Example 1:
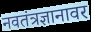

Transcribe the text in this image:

नवतंत्रज्ञानावर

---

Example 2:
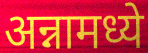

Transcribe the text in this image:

अन्नामध्ये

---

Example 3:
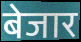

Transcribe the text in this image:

बेजार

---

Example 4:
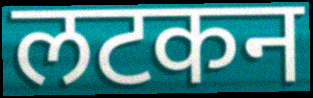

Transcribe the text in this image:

लटकन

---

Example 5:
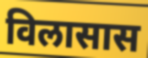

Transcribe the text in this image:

विलासास